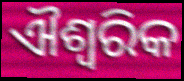
ଐଶ୍ୱରିକ